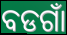
ବଡଗାଁ